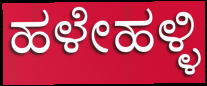
ಹಳೇಹಳ್ಳಿ